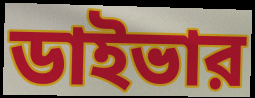
ডাইভার